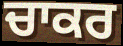
ਚਾਕਰ